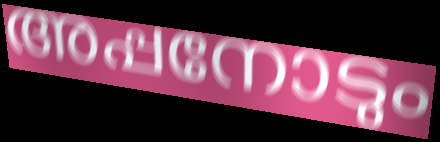
അപ്പനോടും